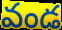
వండ